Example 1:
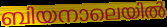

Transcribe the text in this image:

ബിയനാലെയിൽ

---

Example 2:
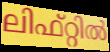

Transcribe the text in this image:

ലിഫ്റ്റിൽ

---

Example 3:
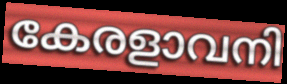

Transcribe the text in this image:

കേരളാവനി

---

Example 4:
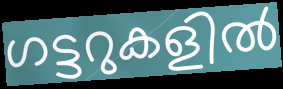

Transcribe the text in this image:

ഗട്ടറുകളിൽ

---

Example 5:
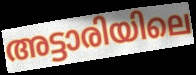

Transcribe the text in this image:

അട്ടാരിയിലെ